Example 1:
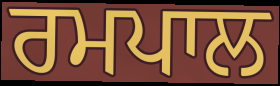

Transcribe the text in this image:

ਰਮਪਾਲ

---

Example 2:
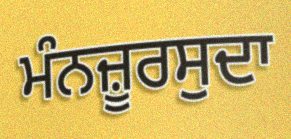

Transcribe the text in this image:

ਮੰਨਜ਼ੂਰਸੁਦਾ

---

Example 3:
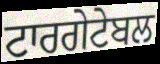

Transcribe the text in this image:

ਟਾਰਗੇਟੇਬਲ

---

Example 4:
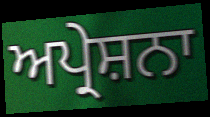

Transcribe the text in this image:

ਅਪ੍ਰੇਸ਼ਨਾ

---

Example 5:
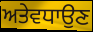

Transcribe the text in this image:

ਅਤੇਵਧਾਉਣ